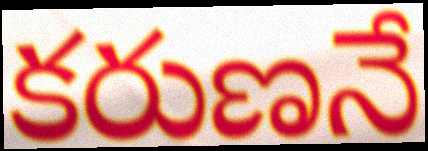
కరుణనే